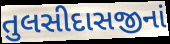
તુલસીદાસજીનાં